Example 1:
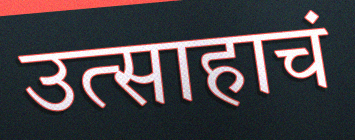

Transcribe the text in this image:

उत्साहाचं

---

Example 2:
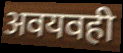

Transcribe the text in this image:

अवयवही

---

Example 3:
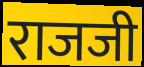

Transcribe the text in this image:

राजजी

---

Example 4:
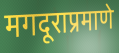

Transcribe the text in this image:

मगदूराप्रमाणे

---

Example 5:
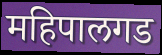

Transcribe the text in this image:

महिपालगड